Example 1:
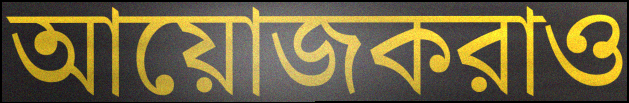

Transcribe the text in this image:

আয়োজকরাও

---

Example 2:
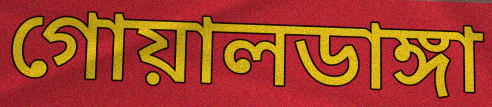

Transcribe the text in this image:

গোয়ালডাঙ্গা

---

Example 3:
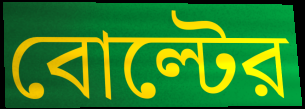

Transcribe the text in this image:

বোল্টের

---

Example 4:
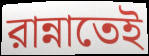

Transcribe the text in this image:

রান্নাতেই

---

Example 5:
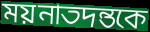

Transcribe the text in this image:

ময়নাতদন্তকে